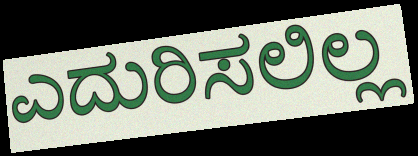
ಎದುರಿಸಲಿಲ್ಲ